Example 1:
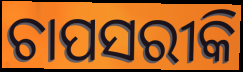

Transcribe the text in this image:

ଚାପସରୀକି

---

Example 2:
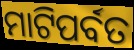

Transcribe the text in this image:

ମାଟିପର୍ବତ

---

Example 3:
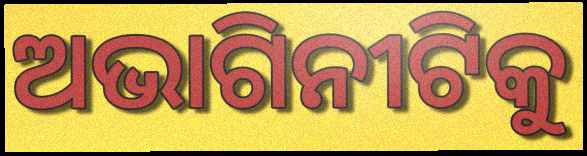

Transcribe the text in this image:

ଅଭାଗିନୀଟିକୁ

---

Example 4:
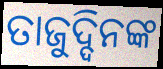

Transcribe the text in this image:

ତାଜୁଦ୍ଦିନଙ୍କ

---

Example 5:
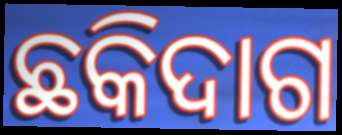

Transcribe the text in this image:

ଛକିଦାଗ